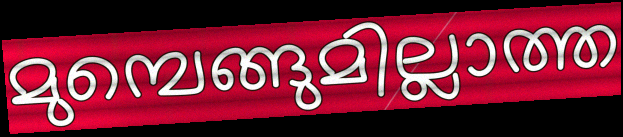
മുമ്പെങ്ങുമില്ലാത്ത